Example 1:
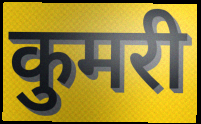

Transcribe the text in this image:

कुमरी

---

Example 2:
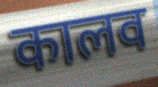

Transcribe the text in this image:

कालव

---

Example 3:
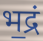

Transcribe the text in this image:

भ॒द्रं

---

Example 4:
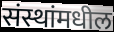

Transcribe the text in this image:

संस्थांमधील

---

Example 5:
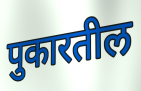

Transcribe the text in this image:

पुकारतील